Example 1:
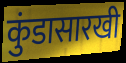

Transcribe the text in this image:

कुंडासारखी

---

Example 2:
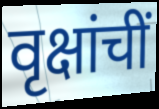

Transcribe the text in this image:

वृक्षांचीं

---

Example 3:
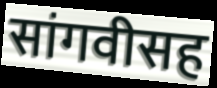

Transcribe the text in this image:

सांगवीसह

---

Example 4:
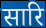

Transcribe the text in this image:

सारि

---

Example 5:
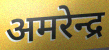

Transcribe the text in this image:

अमरेन्द्र